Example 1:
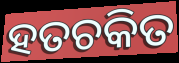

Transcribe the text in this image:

ହତଚକିତ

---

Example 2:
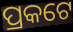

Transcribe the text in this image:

ପ୍ରକଟେ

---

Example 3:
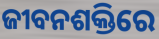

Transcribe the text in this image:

ଜୀବନଶକ୍ତିରେ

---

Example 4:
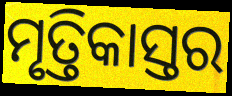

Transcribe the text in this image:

ମୃତ୍ତିକାସ୍ତର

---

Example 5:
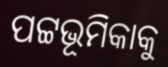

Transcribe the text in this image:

ପଟ୍ଟଭୂମିକାକୁ